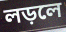
লড়লে